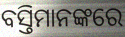
ବସ୍ତିମାନଙ୍କରେ